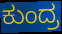
ಕುಂದ್ರ